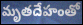
మృతదేహంతో